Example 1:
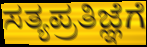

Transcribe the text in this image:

ಸತ್ಯಪ್ರತಿಜ್ಞೆಗೆ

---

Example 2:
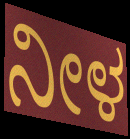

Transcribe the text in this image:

ನೀಳ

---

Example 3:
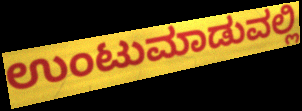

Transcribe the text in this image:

ಉಂಟುಮಾಡುವಲ್ಲಿ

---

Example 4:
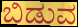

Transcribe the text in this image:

ಬಿಡುವ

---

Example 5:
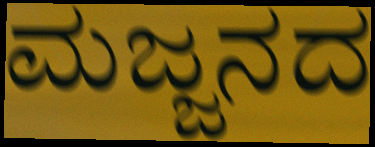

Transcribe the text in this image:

ಮಜ್ಜನದ